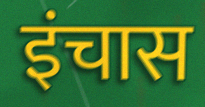
इंचास